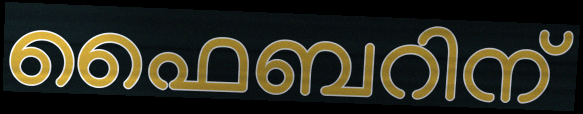
ഫൈബറിന്